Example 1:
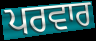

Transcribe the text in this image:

ਪਰਵਾਰ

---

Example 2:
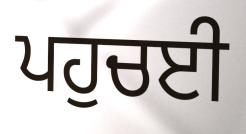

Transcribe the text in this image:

ਪਹੁਚਈ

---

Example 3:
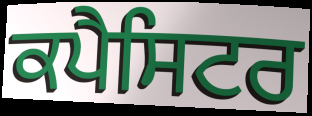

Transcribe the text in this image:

ਕਪੈਸਿਟਰ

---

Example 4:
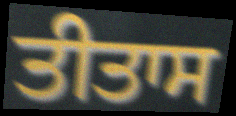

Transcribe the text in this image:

ਤੀਤਾਸ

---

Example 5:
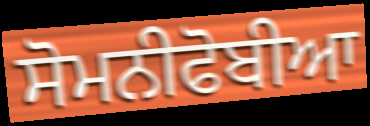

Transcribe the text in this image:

ਸੋਮਨੀਫੋਬੀਆ